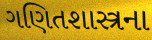
ગણિતશાસ્ત્રના